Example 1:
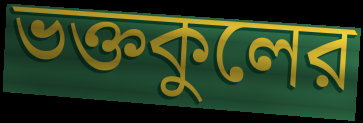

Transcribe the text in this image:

ভক্তকুলের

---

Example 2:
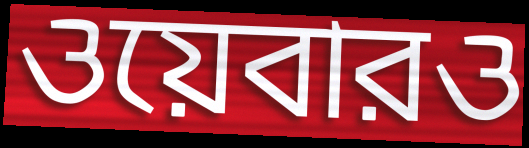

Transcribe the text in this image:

ওয়েবারও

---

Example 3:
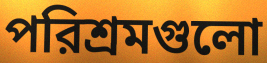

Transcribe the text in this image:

পরিশ্রমগুলো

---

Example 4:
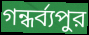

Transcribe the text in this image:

গন্ধর্ব্যপুর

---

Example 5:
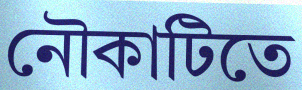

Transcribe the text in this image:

নৌকাটিতে